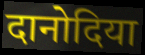
दानोदिया